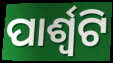
ପାର୍ଶ୍ଵଟି